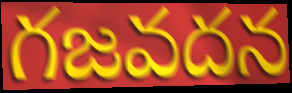
గజవదన